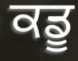
ਕਡੂ